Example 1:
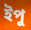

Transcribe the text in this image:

ইপু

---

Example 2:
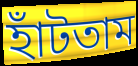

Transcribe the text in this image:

হাঁটতাম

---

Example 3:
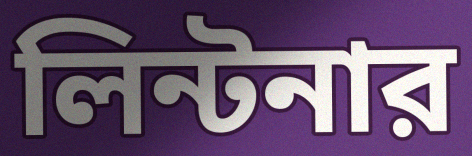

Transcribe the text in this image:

লিন্টনার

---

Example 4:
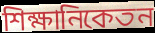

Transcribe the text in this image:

শিক্ষানিকেতন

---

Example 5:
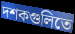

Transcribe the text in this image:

দশকগুলিতে